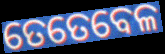
ତେତେବେଳ